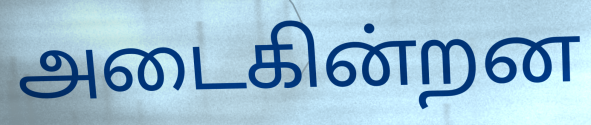
அடைகின்றன